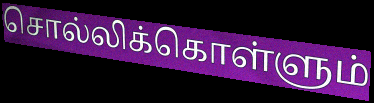
சொல்லிக்கொள்ளும்